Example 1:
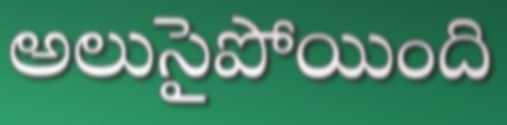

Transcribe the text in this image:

అలుసైపోయింది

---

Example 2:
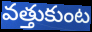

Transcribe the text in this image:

వత్తుకుంట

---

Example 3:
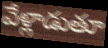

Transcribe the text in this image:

వేళ్లాడుతూ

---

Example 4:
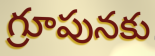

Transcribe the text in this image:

గ్రూపునకు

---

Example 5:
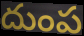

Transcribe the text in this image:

దుంప